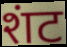
शंट